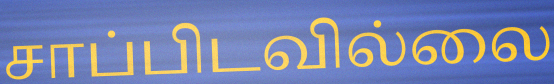
சாப்பிடவில்லை